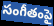
సంగీతంపై